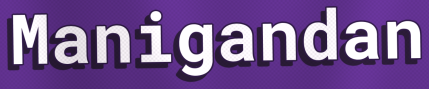
Manigandan